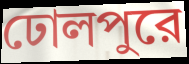
ঢোলপুরে